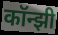
कॉन्झी